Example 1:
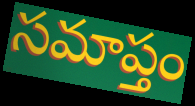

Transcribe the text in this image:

సమాప్తం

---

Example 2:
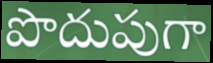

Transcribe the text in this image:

పొదుపుగా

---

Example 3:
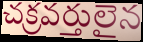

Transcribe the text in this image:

చక్రవర్తులైన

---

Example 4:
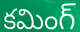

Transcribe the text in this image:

కమింగ్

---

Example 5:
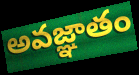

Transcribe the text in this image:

అవజ్ఞాతం